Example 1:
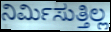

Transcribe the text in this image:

ನಿರ್ಮಿಸುತ್ತಿಲ್ಲ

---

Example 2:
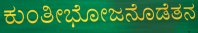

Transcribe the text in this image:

ಕುಂತೀಭೋಜನೊಡೆತನ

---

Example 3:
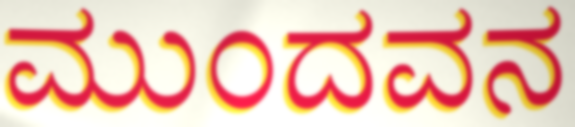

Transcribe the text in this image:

ಮುಂದವನ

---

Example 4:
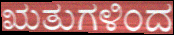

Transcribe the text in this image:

ಋತುಗಳಿಂದ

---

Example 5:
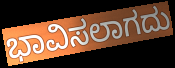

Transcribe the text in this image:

ಭಾವಿಸಲಾಗದು